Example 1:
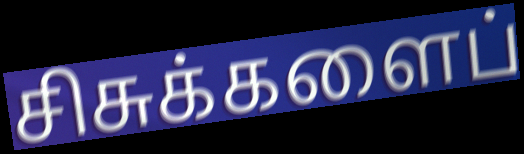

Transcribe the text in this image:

சிசுக்களைப்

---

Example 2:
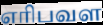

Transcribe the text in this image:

எரிபவள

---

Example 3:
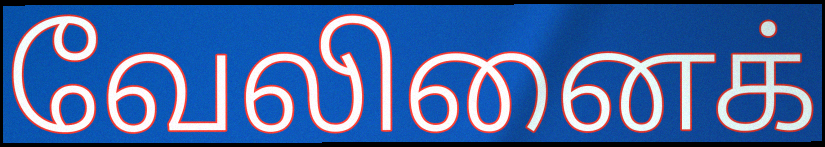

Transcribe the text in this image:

வேலினைக்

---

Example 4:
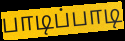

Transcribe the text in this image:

பாடிப்பாடி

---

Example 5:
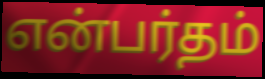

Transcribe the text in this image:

என்பர்தம்